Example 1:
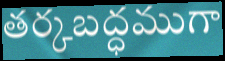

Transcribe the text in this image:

తర్కబద్ధముగా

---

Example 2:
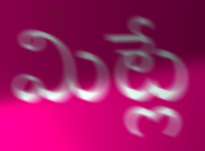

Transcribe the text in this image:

మిట్లే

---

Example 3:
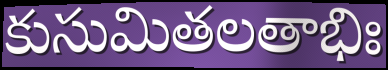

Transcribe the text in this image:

కుసుమితలతాభిః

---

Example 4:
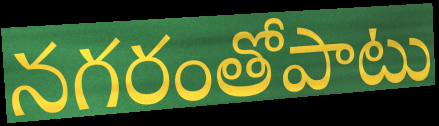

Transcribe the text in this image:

నగరంతోపాటు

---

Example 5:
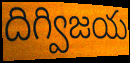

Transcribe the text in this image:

దిగ్విజయ